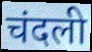
चंदली